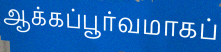
ஆக்கப்பூர்வமாகப்